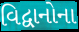
વિદ્વાનોના